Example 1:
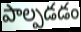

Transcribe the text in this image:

పాల్పడడం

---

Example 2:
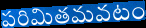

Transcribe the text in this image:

పరిమితమవటం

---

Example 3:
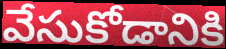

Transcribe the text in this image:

వేసుకోడానికి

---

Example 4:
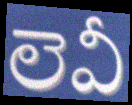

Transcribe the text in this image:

లెవీ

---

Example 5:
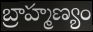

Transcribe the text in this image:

బ్రాహ్మణ్యం